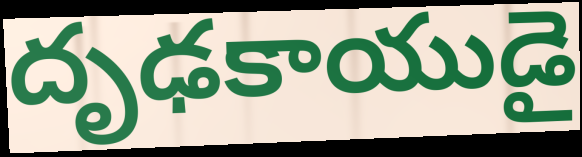
దృఢకాయుడై